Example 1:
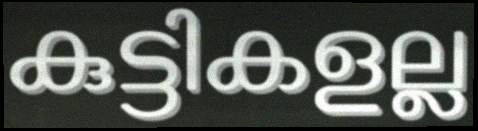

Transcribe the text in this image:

കുട്ടികളല്ല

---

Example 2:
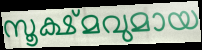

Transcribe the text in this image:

സൂക്ഷ്മവുമായ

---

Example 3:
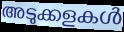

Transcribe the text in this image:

അടുക്കളകൾ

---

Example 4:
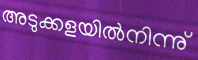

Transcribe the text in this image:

അടുക്കളയിൽനിന്നു്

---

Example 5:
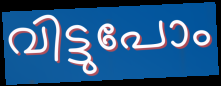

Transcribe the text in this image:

വിട്ടുപോം